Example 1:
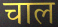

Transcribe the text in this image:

चाल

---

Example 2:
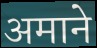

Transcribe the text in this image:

अमाने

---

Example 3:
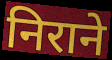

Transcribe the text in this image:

निराने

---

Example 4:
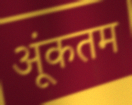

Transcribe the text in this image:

अूंकतम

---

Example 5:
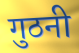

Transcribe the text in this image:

गुठनी